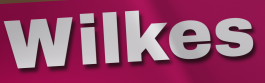
Wilkes